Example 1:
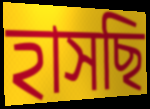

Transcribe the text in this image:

হাসছি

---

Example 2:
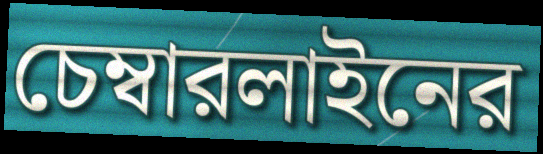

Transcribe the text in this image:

চেম্বারলাইনের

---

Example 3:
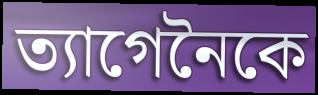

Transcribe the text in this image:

ত্যাগেনৈকে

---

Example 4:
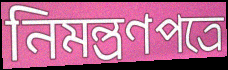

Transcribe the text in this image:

নিমন্ত্রণপত্রে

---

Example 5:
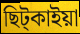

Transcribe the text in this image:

ছিট্কাইয়া